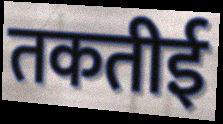
तकतीई